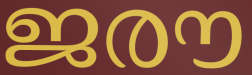
ജരൗ